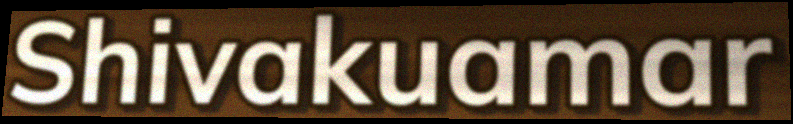
Shivakuamar